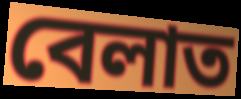
বেলাত